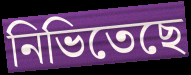
নিভিতেছে